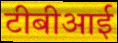
टीबीआई